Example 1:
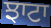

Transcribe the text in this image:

ਝਾਟਾ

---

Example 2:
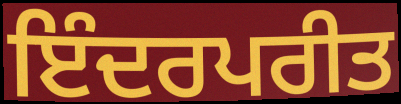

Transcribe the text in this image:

ਇੰਦਰਪਰੀਤ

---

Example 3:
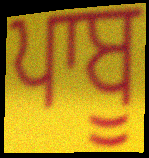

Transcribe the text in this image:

ਪਾਬੂ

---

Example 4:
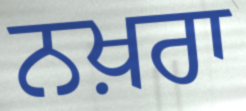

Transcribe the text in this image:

ਨਖ਼ਰਾ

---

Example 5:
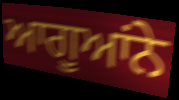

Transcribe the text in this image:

ਆਗੂਆਂਨੇ